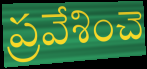
ప్రవేశించె